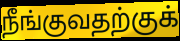
நீங்குவதற்குக்